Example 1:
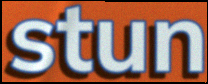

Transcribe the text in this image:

stun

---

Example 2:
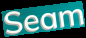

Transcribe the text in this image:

Seam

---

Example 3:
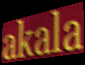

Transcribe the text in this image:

akala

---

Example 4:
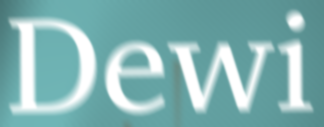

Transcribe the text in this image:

Dewi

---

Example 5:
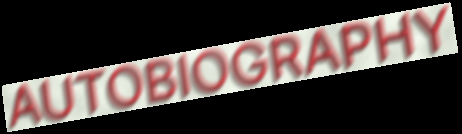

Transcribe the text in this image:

AUTOBIOGRAPHY